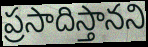
ప్రసాదిస్తానని